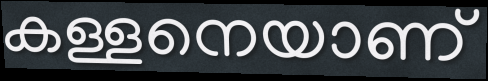
കള്ളനെയാണ്